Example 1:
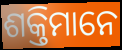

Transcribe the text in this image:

ଶକ୍ତିମାନେ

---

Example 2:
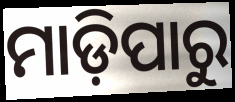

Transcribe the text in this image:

ମାଡ଼ିପାରୁ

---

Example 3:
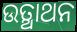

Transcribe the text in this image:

ଉତ୍ଥାଥନ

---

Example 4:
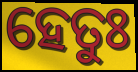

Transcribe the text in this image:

ହେତୁଃ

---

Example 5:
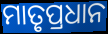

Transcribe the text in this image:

ମାତୃପ୍ରଧାନ